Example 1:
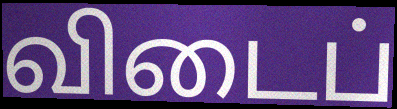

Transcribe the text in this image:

விடைப்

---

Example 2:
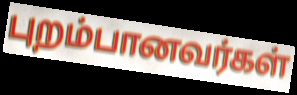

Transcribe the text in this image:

புறம்பானவர்கள்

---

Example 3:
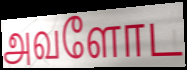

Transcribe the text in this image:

அவளோட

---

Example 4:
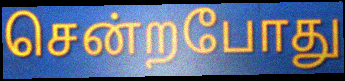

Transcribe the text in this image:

சென்றபோது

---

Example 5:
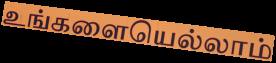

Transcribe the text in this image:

உங்களையெல்லாம்